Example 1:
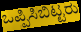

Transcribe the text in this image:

ಒಪ್ಪಿಸಿಬಿಟ್ಟರು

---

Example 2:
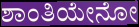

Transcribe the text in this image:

ಶಾಂತಿಯೇನೋ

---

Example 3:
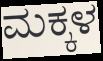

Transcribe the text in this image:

ಮಕ್ಕಳ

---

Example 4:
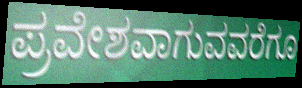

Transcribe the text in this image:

ಪ್ರವೇಶವಾಗುವವರೆಗೂ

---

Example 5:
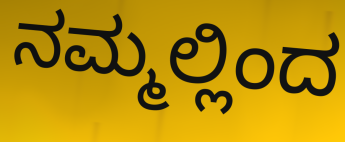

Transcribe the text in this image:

ನಮ್ಮಲ್ಲಿಂದ